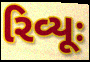
રિવ્યૂઃ